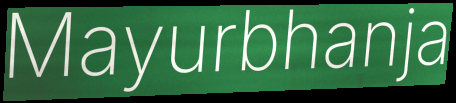
Mayurbhanja